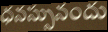
ధనస్సునందు